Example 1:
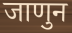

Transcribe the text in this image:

जाणुन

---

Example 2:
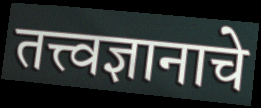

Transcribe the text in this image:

तत्त्वज्ञानाचे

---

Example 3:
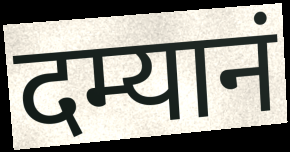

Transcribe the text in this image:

दम्यानं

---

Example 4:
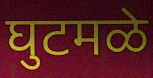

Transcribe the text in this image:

घुटमळे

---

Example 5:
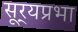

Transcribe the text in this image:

सूर्यप्रभा